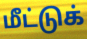
மீட்டுக்